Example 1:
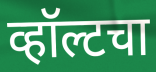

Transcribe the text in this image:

व्हॉल्टचा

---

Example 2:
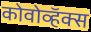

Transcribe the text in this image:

कोवोव्हॅक्स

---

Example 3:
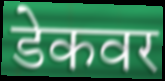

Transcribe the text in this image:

डेकवर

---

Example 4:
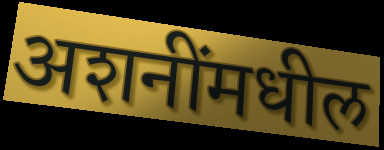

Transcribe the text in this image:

अशनींमधील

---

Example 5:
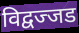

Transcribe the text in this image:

विद्वज्जड